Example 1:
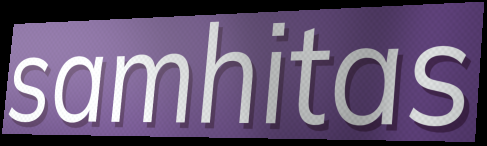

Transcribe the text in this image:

samhitas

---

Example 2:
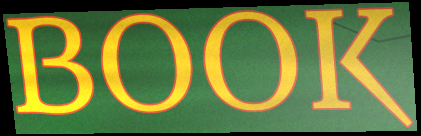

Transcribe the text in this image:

BOOK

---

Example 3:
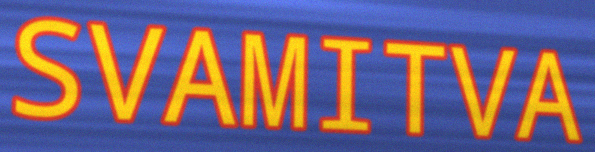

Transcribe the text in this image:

SVAMITVA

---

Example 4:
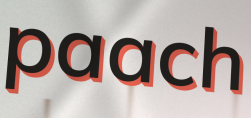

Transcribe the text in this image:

paach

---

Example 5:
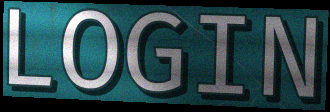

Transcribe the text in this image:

LOGIN